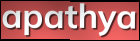
apathya